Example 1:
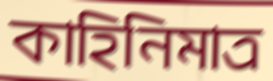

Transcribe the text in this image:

কাহিনিমাত্র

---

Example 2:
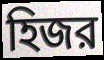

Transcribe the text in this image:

হিজর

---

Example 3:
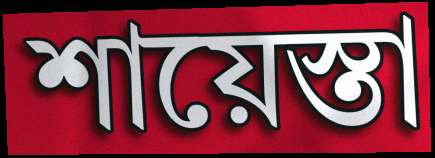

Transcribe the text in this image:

শায়েস্তা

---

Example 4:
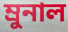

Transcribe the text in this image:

ম্রুনাল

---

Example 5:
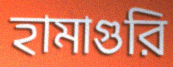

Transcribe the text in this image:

হামাগুরি